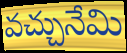
వచ్చునేమి